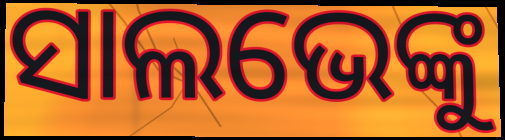
ସାଲଭେଙ୍କୁ